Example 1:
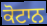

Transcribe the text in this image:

ਕੋਟਾਨ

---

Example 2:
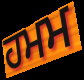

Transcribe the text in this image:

ਹਮਮ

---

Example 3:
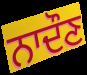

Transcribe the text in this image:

ਨਾਦੌਣ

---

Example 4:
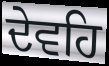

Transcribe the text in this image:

ਦੇਵਹਿ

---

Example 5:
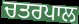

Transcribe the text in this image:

ਚਤਰਪਾਲ